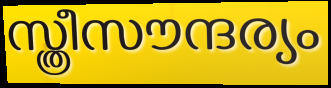
സ്ത്രീസൗന്ദര്യം